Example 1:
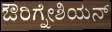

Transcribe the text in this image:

ಔರಿಗ್ನೇಶಿಯನ್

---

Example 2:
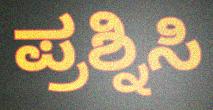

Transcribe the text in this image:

ಪ್ರಶ್ನಿಸಿ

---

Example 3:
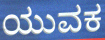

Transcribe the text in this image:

ಯುವಕ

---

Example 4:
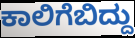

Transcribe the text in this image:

ಕಾಲಿಗೆಬಿದ್ದು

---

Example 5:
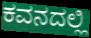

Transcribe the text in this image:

ಕವನದಲ್ಲಿ